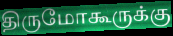
திருமோகூருக்கு